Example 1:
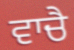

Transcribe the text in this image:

ਵਾਚੈ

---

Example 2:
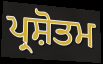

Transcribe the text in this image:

ਪ੍ਰਸ਼ੋਤਮ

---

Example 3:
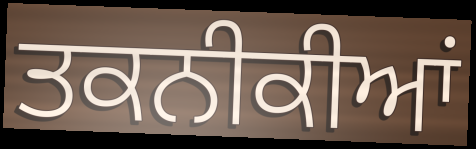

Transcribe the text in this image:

ਤਕਨੀਕੀਆਂ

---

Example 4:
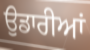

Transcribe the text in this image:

ਉੁਡਾਰੀਆਂ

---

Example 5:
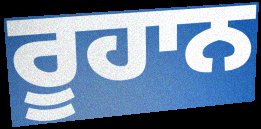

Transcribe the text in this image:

ਰੂਹਾਨ